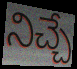
నిచ్చే